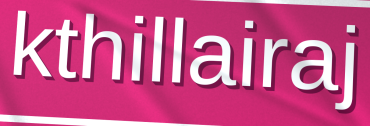
kthillairaj